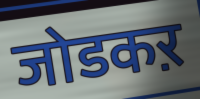
जोडकऱ